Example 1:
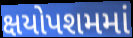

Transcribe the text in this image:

ક્ષયોપશમમાં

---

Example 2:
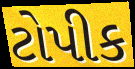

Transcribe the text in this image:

ટોપીક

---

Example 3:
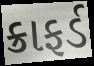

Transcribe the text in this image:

ક્રાફર્ડ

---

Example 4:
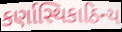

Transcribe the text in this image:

કર્ણાસ્થિકાઠિન્ય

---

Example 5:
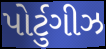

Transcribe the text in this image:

પોર્ટુગીઝ